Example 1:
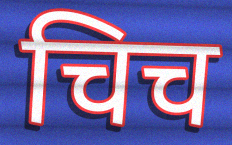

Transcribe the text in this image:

चिच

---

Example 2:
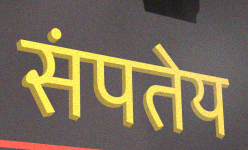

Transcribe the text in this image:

संपतेय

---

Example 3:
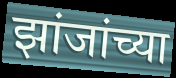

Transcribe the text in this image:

झांजांच्या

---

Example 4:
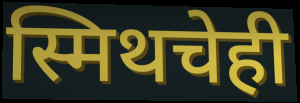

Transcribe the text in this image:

स्मिथचेही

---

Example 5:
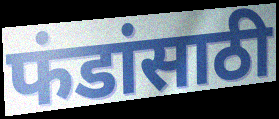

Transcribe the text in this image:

फंडांसाठी